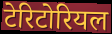
टेरिटोरियल